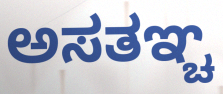
ಅಸತಞ್ಚ